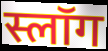
स्लॉग